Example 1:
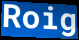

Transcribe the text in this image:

Roig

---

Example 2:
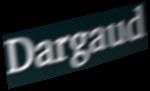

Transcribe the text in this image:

Dargaud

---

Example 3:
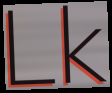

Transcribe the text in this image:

Lk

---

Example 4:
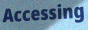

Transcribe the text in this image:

Accessing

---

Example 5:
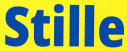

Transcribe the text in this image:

Stille